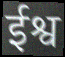
ईश्व